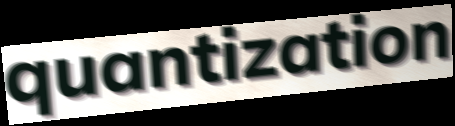
quantization